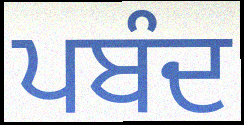
ਪਬੰਦ